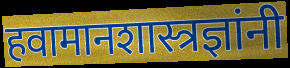
हवामानशास्त्रज्ञांनी